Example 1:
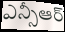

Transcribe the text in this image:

ఎన్సీఆర్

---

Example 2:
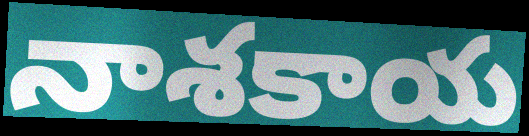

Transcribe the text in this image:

నాశకాయ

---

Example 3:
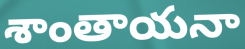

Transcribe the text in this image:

శాంతాయనా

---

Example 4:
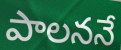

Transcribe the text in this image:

పాలననే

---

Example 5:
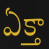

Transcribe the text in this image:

ఏక్తా